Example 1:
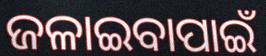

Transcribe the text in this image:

ଜଳାଇବାପାଇଁ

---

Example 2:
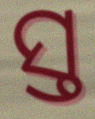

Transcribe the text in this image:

ସ୍ତ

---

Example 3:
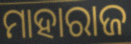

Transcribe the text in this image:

ମାହାରାଜ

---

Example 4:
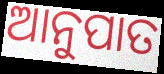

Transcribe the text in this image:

ଆନୁପାତ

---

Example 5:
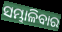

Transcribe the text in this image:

ସମ୍ଭାଳିବାର